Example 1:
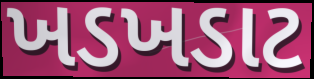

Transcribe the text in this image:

ખડખડાટ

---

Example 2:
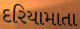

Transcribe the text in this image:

દરિયામાતા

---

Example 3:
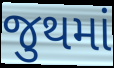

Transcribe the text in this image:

જુથમાં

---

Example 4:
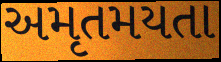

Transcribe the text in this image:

અમૃતમયતા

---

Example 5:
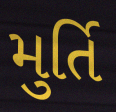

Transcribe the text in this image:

મુર્તિ